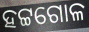
ହଟ୍ଟଗୋଳ